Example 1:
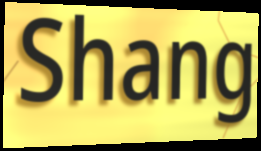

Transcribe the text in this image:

Shang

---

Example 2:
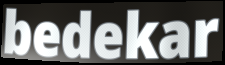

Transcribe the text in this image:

bedekar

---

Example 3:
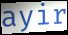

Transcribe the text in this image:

ayir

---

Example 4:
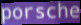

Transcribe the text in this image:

porsche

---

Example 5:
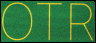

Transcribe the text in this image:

OTR